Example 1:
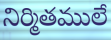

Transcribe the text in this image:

నిర్మితములే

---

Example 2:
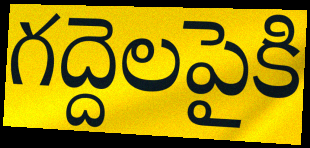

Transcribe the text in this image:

గద్దెలపైకి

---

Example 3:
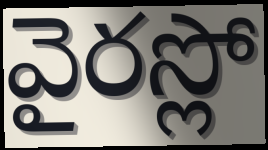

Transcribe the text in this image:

వైరస్లో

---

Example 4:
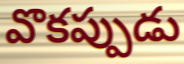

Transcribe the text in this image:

వొకప్పుడు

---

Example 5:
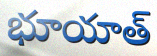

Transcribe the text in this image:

భూయాత్